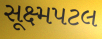
સૂક્ષ્મપટલ